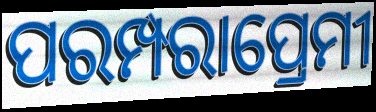
ପରମ୍ପରାପ୍ରେମୀ